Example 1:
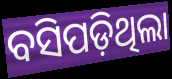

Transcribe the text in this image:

ବସିପଡ଼ିଥିଲା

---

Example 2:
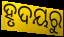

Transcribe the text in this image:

ହୃଦୟରୁ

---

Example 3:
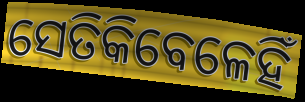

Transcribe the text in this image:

ସେତିକିବେଳେହିଁ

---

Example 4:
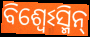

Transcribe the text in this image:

ବିଶ୍ଵେଽସ୍ମିନ୍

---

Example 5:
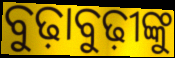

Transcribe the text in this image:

ବୁଢ଼ାବୁଢ଼ୀଙ୍କୁ